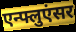
एन्फ्लुएंसर